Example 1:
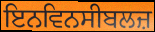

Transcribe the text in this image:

ਇਨਵਿਨਸੀਬਲਜ਼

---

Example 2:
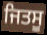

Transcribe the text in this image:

ਜਿਤਸੂ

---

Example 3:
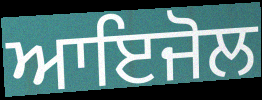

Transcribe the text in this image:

ਆਇਜੋਲ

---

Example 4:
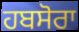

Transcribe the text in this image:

ਹਬਸੋਰਾ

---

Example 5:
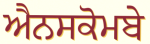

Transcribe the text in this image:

ਐਨਸਕੋਮਬੇ